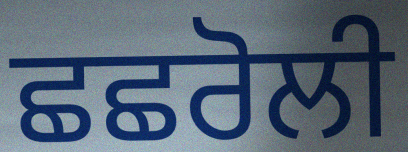
ਛਛਰੋਲੀ